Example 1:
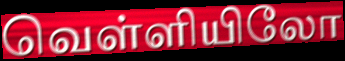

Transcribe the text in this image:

வெள்ளியிலோ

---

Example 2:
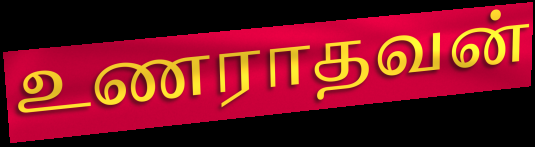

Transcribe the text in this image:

உணராதவன்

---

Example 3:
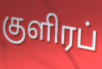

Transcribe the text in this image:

குளிரப்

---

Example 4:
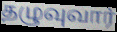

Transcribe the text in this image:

தழுவுவார்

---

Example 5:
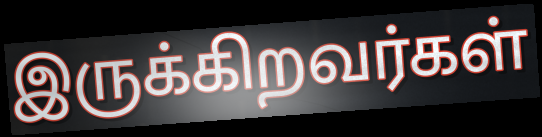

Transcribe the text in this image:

இருக்கிறவர்கள்